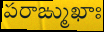
పరాఙ్ముఖాః